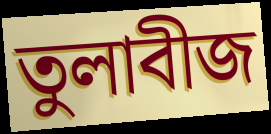
তুলাবীজ